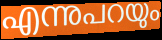
എന്നുപറയും